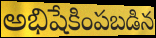
అభిషేకింపబడిన